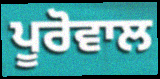
ਪੂਰੋਵਾਲ